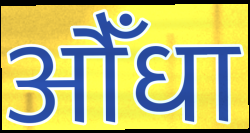
औँधा